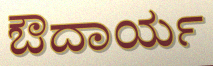
ಔದಾರ್ಯ